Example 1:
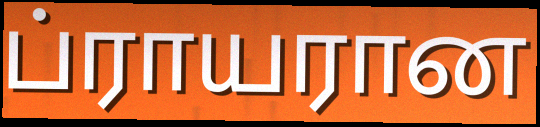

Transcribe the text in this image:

ப்ராயரான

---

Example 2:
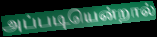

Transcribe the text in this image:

அப்படியென்றால்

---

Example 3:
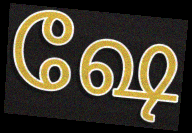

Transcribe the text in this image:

ஷே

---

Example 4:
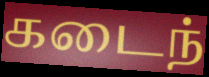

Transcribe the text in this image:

கடைந்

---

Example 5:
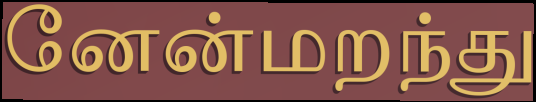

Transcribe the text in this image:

னேன்மறந்து